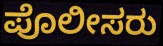
ಪೊಲೀಸರು